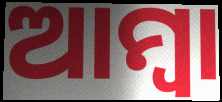
ଆମ୍ବା